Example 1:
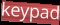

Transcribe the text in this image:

keypad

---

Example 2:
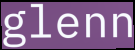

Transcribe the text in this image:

glenn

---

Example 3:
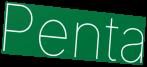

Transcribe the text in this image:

Penta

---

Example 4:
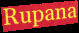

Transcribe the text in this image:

Rupana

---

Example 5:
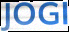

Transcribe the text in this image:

JOGI